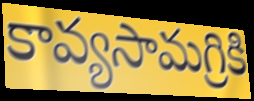
కావ్యసామగ్రికి